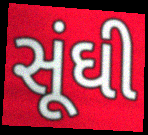
સૂંઘી